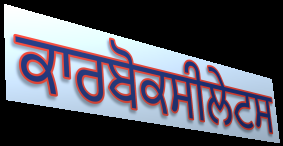
ਕਾਰਬੋਕਸੀਲੇਟਸ